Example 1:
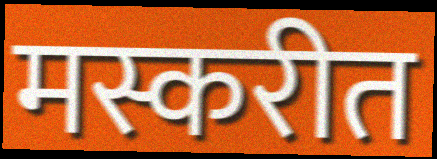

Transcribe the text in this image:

मस्करीत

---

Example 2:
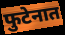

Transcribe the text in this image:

फुटेनात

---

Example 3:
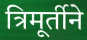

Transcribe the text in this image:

त्रिमूर्तीने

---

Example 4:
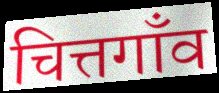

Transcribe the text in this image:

चित्तगाँव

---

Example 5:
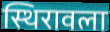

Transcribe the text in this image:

स्थिरावला